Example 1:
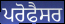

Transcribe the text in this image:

ਪਰੋਫੈਸਰ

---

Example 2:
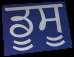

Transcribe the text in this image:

ਡੂਸੂ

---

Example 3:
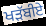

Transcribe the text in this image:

ਖੜੱਬੀਏ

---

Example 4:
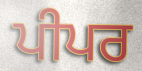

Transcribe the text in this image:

ਪੀਪਰ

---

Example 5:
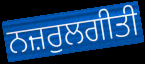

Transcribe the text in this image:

ਨਜ਼ਰੁਲਗੀਤੀ